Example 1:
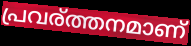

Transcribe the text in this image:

പ്രവര്ത്തനമാണ്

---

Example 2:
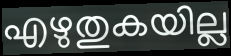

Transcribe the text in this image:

എഴുതുകയില്ല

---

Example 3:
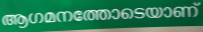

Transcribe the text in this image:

ആഗമനത്തോടെയാണ്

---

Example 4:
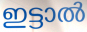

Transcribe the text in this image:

ഇട്ടാൽ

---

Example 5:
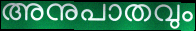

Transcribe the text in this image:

അനുപാതവും